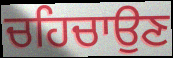
ਚਹਿਚਾਉਣ